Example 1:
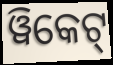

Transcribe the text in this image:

ୱିକେଟ୍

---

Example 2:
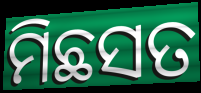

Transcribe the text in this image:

ମିଛସତ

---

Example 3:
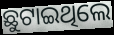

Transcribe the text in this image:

ଛୁଟାଇଥିଲେ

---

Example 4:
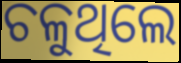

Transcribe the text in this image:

ଚଳୁଥିଲେ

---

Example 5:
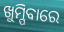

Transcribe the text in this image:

ଖୁମ୍ପିବାରେ